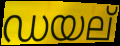
ഡയല്